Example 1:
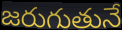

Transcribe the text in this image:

జరుగుతునే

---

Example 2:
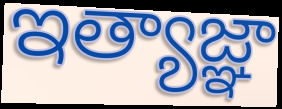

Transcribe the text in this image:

ఇత్యాజ్ఞా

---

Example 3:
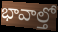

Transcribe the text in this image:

భావాల్తో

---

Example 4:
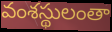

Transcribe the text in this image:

వంశస్థులంతా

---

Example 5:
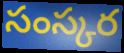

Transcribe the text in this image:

సంస్కర